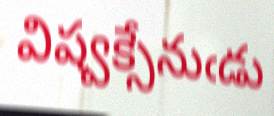
విష్వక్సేనుఁడు